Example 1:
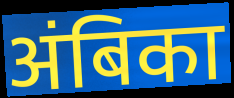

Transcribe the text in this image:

अंबिका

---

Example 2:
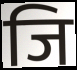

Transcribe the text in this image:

जि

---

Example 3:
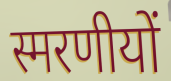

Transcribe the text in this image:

स्मरणीयों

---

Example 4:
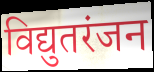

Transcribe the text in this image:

विद्युतरंजन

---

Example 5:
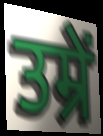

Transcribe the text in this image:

उम्रें